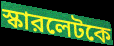
স্কারলেটকে